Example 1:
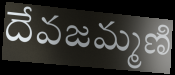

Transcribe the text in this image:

దేవజమ్మణి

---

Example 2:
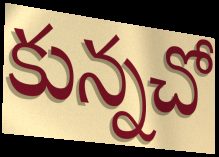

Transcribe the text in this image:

కున్నచో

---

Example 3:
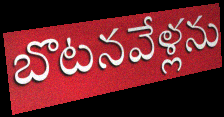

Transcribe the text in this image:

బొటనవేళ్లను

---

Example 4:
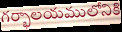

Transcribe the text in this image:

గర్భాలయములోనికి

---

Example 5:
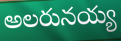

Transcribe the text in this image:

అలరునయ్య